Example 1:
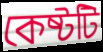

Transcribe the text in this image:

কেষ্টটি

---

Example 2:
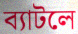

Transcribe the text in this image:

ব্যাটলে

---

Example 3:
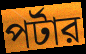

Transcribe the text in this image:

পর্টার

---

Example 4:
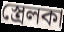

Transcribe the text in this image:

স্ত্রেলকা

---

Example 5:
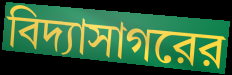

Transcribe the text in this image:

বিদ্যাসাগরের